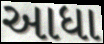
આધા